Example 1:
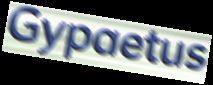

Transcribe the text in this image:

Gypaetus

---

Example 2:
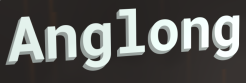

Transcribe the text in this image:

Anglong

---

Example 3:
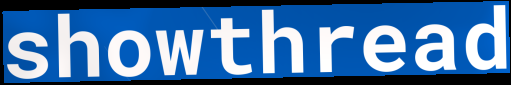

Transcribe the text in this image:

showthread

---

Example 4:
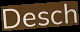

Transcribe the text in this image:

Desch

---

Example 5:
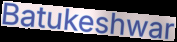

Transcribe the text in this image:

Batukeshwar